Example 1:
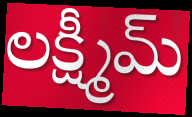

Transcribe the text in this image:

లక్ష్మీమ్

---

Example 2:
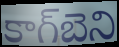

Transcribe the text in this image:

కాగ్‌బెని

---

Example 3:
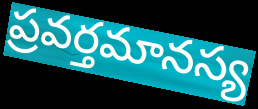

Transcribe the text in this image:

ప్రవర్తమానస్య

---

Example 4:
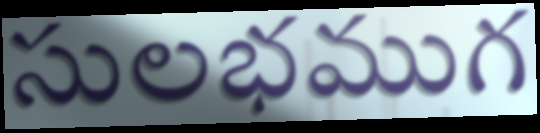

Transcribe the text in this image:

సులభముగ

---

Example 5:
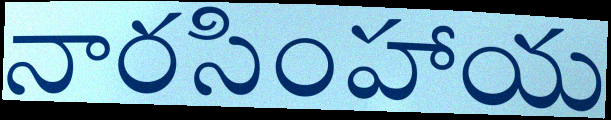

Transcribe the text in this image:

నారసింహాయ